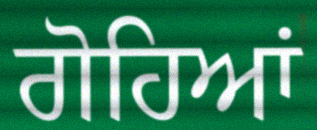
ਗੋਹਿਆਂ